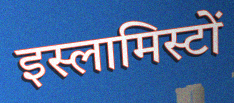
इस्लामिस्टों